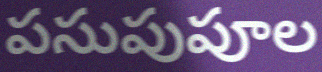
పసుపుపూల